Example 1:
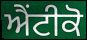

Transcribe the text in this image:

ਐਂਟੀਕੋ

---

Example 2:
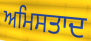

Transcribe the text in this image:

ਅਮਿਸਤਾਦ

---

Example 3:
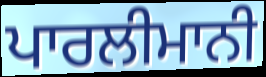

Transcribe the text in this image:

ਪਾਰਲੀਮਾਨੀ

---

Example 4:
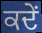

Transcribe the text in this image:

ਕਦੇਂ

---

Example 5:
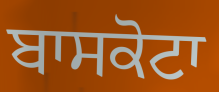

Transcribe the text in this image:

ਬਾਸਕੋਟਾ